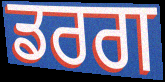
ਡਰਗ